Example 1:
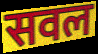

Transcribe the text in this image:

सवल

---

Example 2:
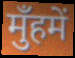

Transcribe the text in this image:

मुँहमें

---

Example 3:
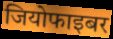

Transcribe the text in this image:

जियोफाइबर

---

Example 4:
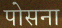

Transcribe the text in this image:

पोसना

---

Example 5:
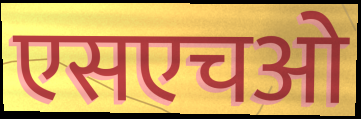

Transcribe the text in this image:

एसएचओ